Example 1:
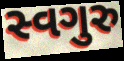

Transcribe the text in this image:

સ્વગુરુ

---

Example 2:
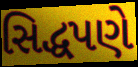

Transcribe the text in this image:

સિદ્ધપણે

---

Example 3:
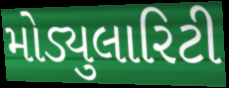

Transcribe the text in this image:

મોડ્યુલારિટી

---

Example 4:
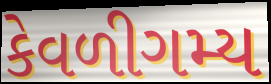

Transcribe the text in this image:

કેવળીગમ્ય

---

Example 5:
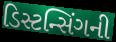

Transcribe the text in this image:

ડિસ્ટન્સિંગની